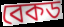
বেকড